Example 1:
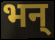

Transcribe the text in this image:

भन्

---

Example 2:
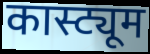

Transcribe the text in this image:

कास्ट्यूम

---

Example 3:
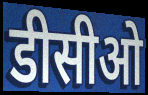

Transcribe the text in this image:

डीसीओ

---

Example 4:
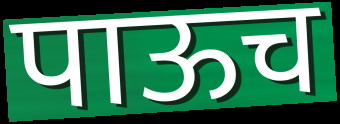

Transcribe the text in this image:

पाऊच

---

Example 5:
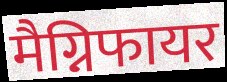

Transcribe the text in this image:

मैग्निफायर